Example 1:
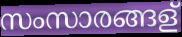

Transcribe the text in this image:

സംസാരങ്ങള്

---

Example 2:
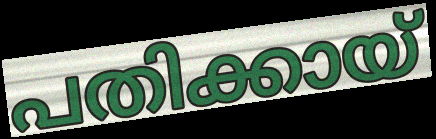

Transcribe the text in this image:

പതിക്കായ്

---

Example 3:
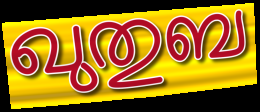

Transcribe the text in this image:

ഖുതുബ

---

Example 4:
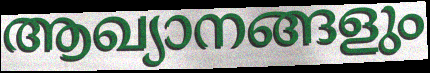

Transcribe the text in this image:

ആഖ്യാനങ്ങളും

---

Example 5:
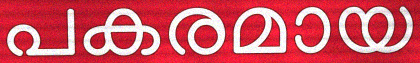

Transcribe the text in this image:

പകരമായ